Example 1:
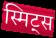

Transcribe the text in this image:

स्मिट्स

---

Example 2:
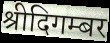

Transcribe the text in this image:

श्रीदिगम्बर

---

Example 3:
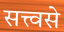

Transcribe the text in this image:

सत्त्वसे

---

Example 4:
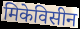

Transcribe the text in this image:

मिकेविसीन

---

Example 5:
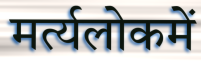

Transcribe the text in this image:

मर्त्यलोकमें